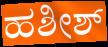
ಹಶೀಶ್